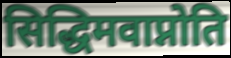
सिद्धिमवाप्नोति